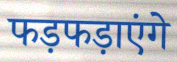
फड़फड़ाएंगे